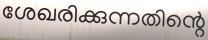
ശേഖരിക്കുന്നതിന്റെ